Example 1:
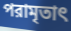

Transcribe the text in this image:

পরামৃতাৎ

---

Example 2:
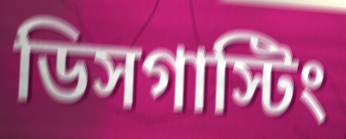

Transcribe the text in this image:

ডিসগাস্টিং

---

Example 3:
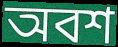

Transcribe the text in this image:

অবশ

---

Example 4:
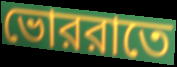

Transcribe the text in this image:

ভোররাতে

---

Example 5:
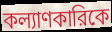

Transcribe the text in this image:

কল্যাণকারিকে